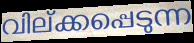
വില്ക്കപ്പെടുന്ന